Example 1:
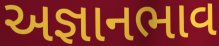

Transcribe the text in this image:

અજ્ઞાનભાવ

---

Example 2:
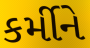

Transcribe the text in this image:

કર્મીને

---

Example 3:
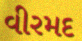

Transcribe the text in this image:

વીરમદ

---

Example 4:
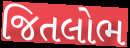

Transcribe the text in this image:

જિતલોભ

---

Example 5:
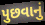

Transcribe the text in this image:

પુછવાનું